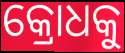
କ୍ରୋଧକୁ